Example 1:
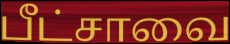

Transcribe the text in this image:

பீட்சாவை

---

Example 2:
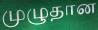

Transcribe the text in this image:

முழுதான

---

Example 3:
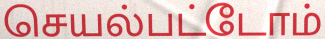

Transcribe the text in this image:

செயல்பட்டோம்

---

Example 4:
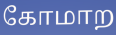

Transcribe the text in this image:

கோமாற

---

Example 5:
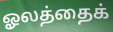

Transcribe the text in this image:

ஓலத்தைக்